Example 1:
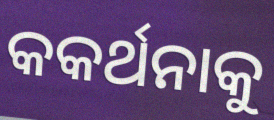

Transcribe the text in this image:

କକର୍ଥନାକୁ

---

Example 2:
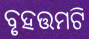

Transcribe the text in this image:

ବୃହତ୍ତମଟି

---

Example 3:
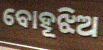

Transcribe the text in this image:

ବୋହୂଝିଅ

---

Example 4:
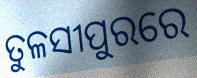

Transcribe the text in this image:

ତୁଳସୀପୁରରେ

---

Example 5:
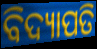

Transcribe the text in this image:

ବିଦ୍ୟାପତି